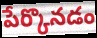
పేర్కొనడం